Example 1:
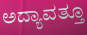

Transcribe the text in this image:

ಅದ್ಯಾವತ್ತೂ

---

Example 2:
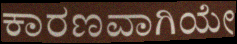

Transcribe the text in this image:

ಕಾರಣವಾಗಿಯೇ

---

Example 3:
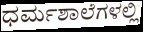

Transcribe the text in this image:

ಧರ್ಮಶಾಲೆಗಳಲ್ಲಿ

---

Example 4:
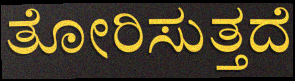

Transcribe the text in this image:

ತೋರಿಸುತ್ತದೆ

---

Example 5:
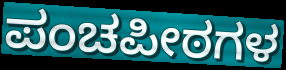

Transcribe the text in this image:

ಪಂಚಪೀಠಗಳ